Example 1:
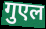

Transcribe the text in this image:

गुएल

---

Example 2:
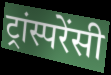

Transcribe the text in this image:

ट्रांस्परेंसी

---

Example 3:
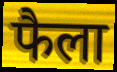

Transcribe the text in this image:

फैला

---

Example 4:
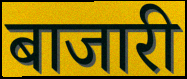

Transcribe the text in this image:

बाजारी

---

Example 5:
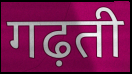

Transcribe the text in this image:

गढ़ती